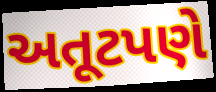
અતૂટપણે